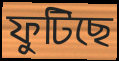
ফুটিছে